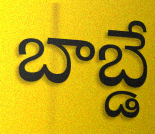
బాబ్డే